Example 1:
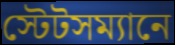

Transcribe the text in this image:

স্টেটসম্যানে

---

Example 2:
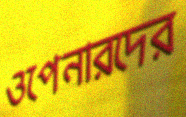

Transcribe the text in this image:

ওপেনারদের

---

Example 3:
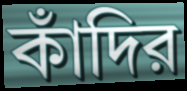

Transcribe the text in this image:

কাঁদির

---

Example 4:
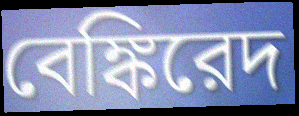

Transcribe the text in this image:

বেঙ্কিরেদ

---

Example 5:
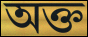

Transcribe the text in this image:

অক্ত